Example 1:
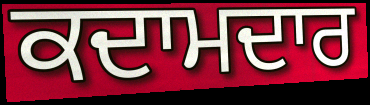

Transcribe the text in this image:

ਕਦਾਮਦਾਰ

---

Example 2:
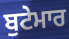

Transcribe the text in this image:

ਬੁਟੇਮਾਰ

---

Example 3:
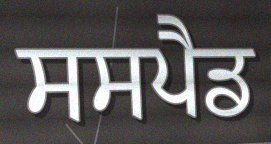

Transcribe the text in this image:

ਸਸਪੈਡ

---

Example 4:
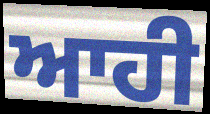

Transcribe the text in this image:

ਆਹੀ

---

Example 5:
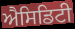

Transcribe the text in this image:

ਐਸਿਡਿਟੀ